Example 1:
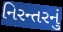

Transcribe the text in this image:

નિરન્તરનું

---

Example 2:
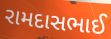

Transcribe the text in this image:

રામદાસભાઈ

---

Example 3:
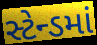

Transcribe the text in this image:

સ્ટેન્ડમાં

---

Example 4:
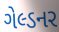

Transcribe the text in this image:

ગેલ્ડનર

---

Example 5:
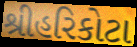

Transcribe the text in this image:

શ્રીહરિકોટા